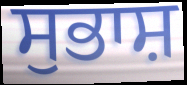
ਸੁਭਾਸ਼